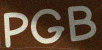
PGB